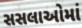
સસલાઓમાં